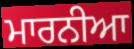
ਮਾਰਨੀਆ